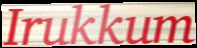
Irukkum